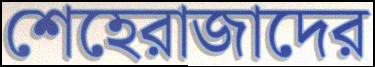
শেহেরাজাদের